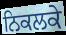
ਨਿਕਲਕੇ